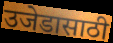
उजेडासाठी